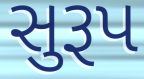
સુરૂપ